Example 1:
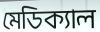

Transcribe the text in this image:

মেডিক্যাল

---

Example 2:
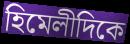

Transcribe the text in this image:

হিমেলীদিকে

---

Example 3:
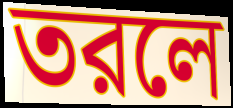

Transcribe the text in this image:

তরলে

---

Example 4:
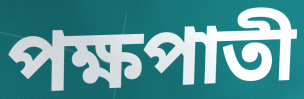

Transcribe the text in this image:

পক্ষপাতী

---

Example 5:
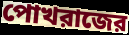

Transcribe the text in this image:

পোখরাজের